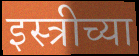
इस्त्रीच्या